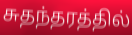
சுதந்தரத்தில்